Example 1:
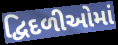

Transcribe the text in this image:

દ્વિદળીઓમાં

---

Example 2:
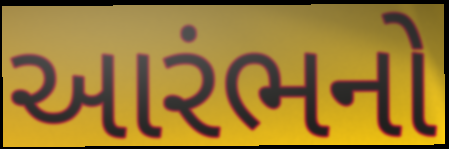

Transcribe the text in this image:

આરંભનો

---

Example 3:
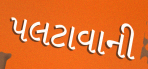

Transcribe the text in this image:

પલટાવાની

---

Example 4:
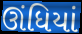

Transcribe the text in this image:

ઊંધિયાં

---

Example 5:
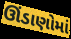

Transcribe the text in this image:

ઊંડાણોમાં